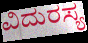
ವಿದುರಸ್ಯ